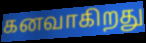
கனவாகிறது